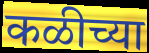
कळीच्या